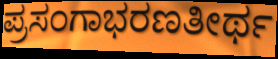
ಪ್ರಸಂಗಾಭರಣತೀರ್ಥ